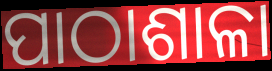
ପାଠାଶାଳା